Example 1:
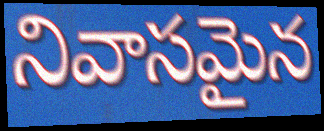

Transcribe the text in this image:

నివాసమైన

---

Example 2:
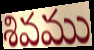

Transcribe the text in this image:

శివము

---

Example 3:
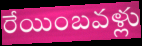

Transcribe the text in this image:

రేయింబవళ్లు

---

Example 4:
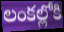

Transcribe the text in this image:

లంకల్లోకి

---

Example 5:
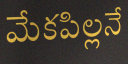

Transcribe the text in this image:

మేకపిల్లనే